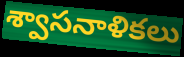
శ్వాసనాళికలు